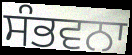
ਸੰਭਵਨਾ